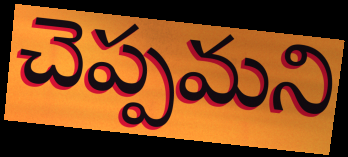
చెప్పమని